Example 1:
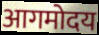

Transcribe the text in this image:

आगमोदय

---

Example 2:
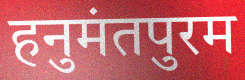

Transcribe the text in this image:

हनुमंतपुरम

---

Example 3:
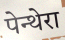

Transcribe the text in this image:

पेन्थेरा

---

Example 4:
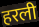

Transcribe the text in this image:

हरली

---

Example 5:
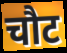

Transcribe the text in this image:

चौट